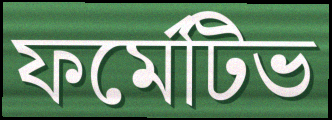
ফর্মেটিভ